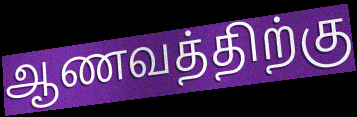
ஆணவத்திற்கு